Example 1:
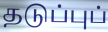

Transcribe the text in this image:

தடுப்புப்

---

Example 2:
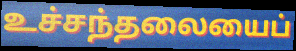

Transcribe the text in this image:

உச்சந்தலையைப்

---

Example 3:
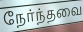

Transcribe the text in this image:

நேர்ந்தவை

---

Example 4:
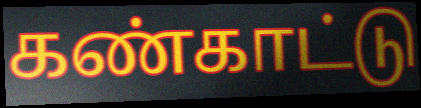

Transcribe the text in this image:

கண்காட்டு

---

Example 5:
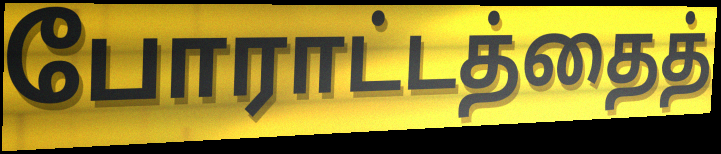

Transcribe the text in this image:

போராட்டத்தைத்